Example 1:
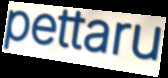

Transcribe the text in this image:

pettaru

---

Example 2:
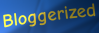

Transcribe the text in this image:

Bloggerized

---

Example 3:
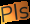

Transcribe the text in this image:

Pls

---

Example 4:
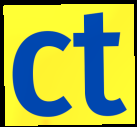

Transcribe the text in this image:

ct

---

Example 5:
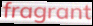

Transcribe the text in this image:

fragrant